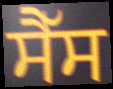
ਸੈੱਸ